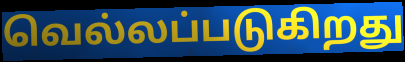
வெல்லப்படுகிறது